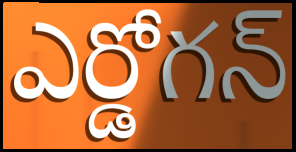
ఎర్డోగన్